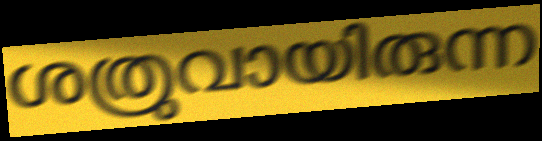
ശത്രുവായിരുന്ന